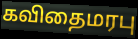
கவிதைமரபு